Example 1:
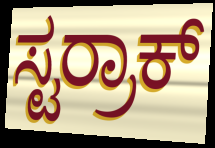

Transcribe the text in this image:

ಸ್ಟರ್ರಾಕ್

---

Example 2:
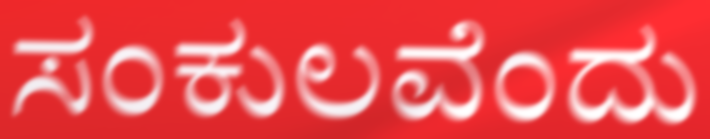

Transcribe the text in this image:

ಸಂಕುಲವೆಂದು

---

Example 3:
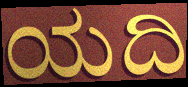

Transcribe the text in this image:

ಯದಿ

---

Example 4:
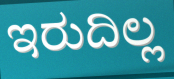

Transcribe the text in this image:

ಇರುದಿಲ್ಲ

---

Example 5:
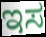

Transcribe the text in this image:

ಇಸ